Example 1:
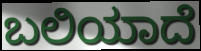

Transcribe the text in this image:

ಬಲಿಯಾದೆ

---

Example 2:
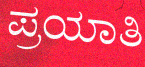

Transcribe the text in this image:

ಪ್ರಯಾತಿ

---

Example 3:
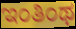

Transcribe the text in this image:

ಇಂತಿಂಥ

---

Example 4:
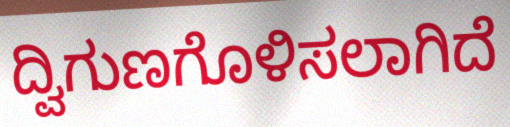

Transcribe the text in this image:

ದ್ವಿಗುಣಗೊಳಿಸಲಾಗಿದೆ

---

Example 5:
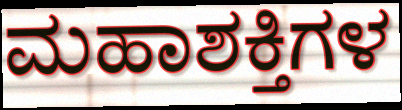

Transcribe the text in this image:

ಮಹಾಶಕ್ತಿಗಳ